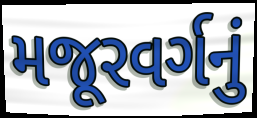
મજૂરવર્ગનું